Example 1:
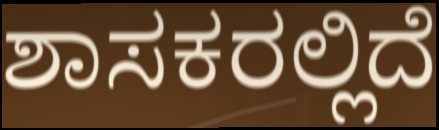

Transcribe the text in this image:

ಶಾಸಕರಲ್ಲಿದೆ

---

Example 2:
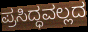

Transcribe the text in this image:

ಪ್ರಸಿದ್ಧವಲ್ಲದ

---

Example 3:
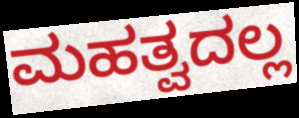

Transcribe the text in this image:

ಮಹತ್ವದಲ್ಲ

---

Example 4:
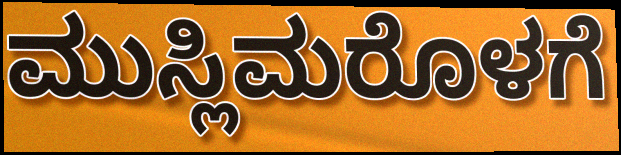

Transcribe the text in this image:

ಮುಸ್ಲಿಮರೊಳಗೆ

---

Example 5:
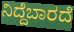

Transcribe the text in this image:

ನಿದ್ದೆಬಾರದೆ